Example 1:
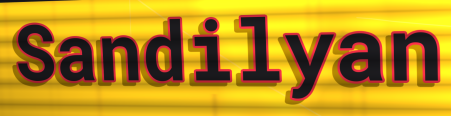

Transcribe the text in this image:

Sandilyan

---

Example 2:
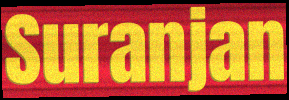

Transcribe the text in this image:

Suranjan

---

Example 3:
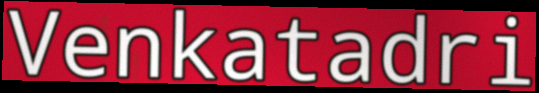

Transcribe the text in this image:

Venkatadri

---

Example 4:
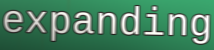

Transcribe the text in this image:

expanding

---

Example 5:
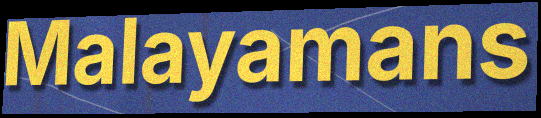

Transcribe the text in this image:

Malayamans